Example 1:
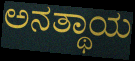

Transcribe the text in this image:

ಅನತ್ಥಾಯ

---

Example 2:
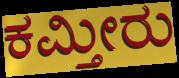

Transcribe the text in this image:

ಕಮ್ತೀರು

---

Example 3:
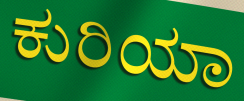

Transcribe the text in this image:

ಕುರಿಯಾ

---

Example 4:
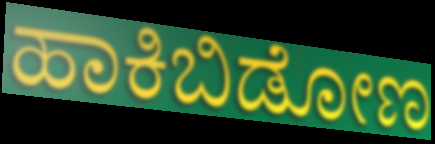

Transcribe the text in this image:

ಹಾಕಿಬಿಡೋಣ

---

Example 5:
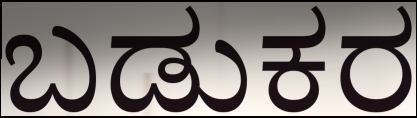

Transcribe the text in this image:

ಬಡುಕರ